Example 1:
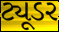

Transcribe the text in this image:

ટ્યૂડર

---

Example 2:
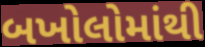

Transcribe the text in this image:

બખોલોમાંથી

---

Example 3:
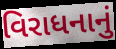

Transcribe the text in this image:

વિરાધનાનું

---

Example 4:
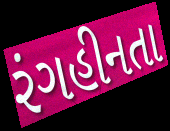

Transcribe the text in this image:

રંગહીનતા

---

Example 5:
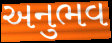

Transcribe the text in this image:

અનુભવ